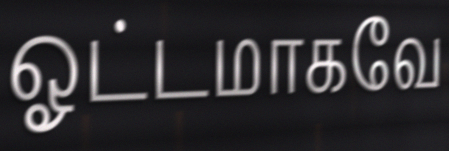
ஓட்டமாகவே